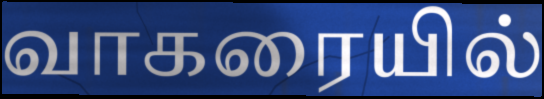
வாகரையில்